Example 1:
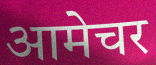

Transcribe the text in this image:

आमेचर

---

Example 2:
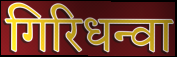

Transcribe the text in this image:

गिरिधन्वा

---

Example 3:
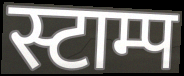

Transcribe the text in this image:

स्टाम्प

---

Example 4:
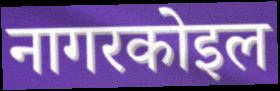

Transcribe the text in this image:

नागरकोइल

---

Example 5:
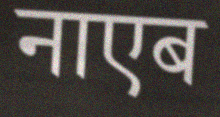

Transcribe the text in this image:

नाएब